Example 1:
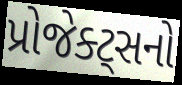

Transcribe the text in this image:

પ્રોજેક્ટ્સનો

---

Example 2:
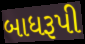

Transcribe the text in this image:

બાધરૂપી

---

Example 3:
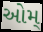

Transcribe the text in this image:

ઓમ્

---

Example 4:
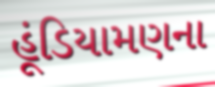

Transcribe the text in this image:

હૂંડિયામણના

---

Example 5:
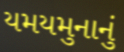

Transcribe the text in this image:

યમયમુનાનું